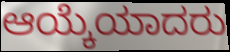
ಆಯ್ಕೆಯಾದರು